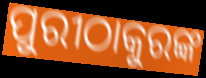
ପୁରୀଠାକୁରଙ୍କ